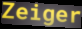
Zeiger